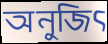
অনুজিৎ